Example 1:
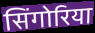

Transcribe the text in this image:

सिंगोरिया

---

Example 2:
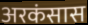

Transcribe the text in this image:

अरकंसास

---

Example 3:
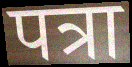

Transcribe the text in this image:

पत्रा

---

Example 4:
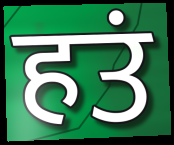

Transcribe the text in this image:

हउं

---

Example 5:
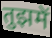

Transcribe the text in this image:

तुझमें